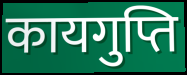
कायगुप्ति